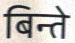
बिन्ते